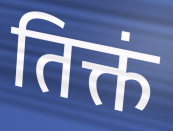
तिक्तं